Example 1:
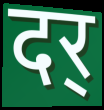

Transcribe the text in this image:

दर्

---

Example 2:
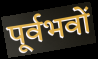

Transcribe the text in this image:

पूर्वभवों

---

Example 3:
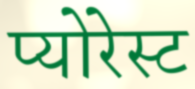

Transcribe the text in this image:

प्योरेस्ट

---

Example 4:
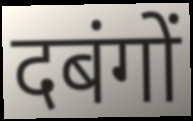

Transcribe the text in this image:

दबंगों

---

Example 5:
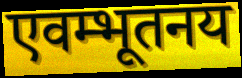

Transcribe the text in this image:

एवम्भूतनय